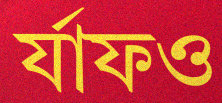
র্যাফও